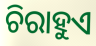
ଚିରାହୁଏ